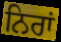
ਨਿਰਾਂ